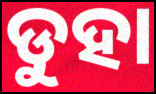
ଡୁହା